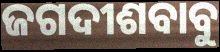
ଜଗଦୀଶବାବୁ